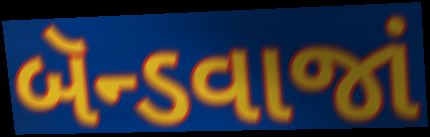
બૅન્ડવાજાં